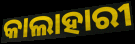
କାଲାହାରୀ